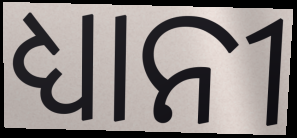
ଧ୍ୟାନୀ